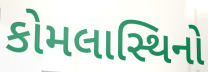
કોમલાસ્થિનો